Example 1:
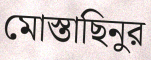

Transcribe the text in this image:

মোস্তাছিনুর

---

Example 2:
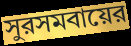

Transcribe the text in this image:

সুরসমবায়ের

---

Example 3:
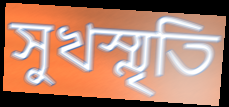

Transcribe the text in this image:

সুখস্মৃতি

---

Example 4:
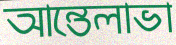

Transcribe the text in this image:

আন্তেলাভা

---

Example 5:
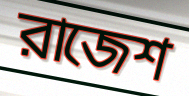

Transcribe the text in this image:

রাজেশ